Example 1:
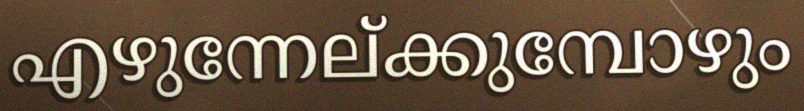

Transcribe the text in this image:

എഴുന്നേല്ക്കുമ്പോഴും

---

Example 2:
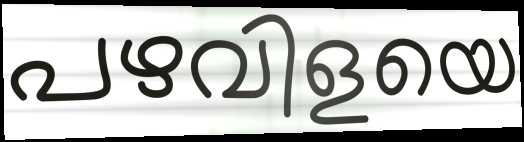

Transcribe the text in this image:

പഴവിളയെ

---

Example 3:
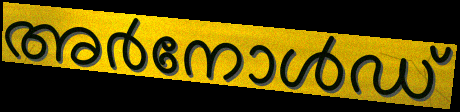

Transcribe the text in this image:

അർനോൾഡ്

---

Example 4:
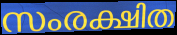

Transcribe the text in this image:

സംരക്ഷിത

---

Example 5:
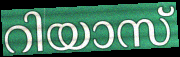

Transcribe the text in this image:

റിയാസ്